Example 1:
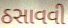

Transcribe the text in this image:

ઠસાવવી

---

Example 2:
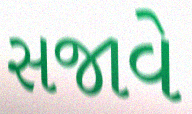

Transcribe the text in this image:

સજાવે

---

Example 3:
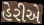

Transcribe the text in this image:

હેરીએ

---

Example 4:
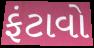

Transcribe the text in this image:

ફંટાવો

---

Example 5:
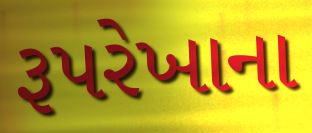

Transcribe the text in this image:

રૂપરેખાના